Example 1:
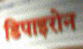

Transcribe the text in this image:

डिपाइरोन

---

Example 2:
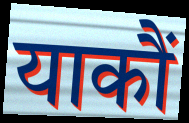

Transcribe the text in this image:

याकौं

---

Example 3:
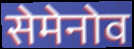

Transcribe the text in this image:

सेमेनोव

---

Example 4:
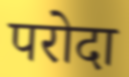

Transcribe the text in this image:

परोदा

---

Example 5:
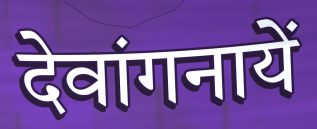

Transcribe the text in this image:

देवांगनायें